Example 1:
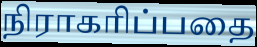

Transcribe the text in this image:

நிராகரிப்பதை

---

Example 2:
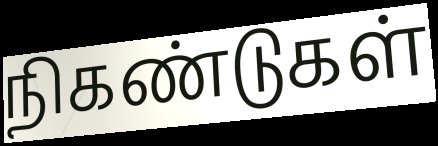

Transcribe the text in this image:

நிகண்டுகள்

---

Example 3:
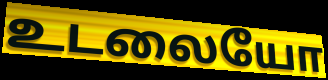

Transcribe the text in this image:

உடலையோ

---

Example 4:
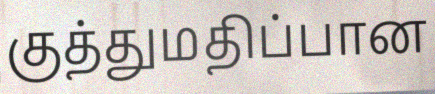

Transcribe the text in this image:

குத்துமதிப்பான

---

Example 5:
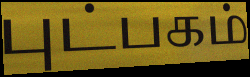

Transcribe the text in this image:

புட்பகம்